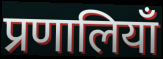
प्रणालियाँ